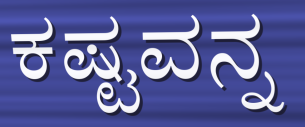
ಕಷ್ಟವನ್ನ